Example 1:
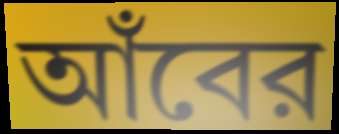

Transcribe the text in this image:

আঁবের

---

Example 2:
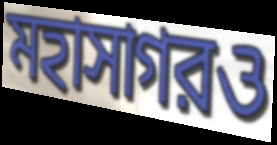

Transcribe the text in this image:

মহাসাগরও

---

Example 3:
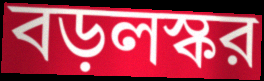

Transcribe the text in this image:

বড়লস্কর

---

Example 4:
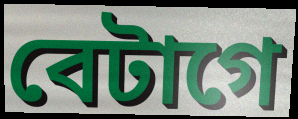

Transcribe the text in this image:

বেটাগে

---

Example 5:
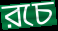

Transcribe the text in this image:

রচে